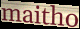
maitho